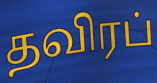
தவிரப்